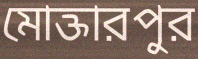
মোক্তারপুর